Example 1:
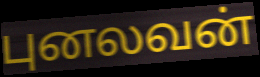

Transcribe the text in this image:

புனலவன்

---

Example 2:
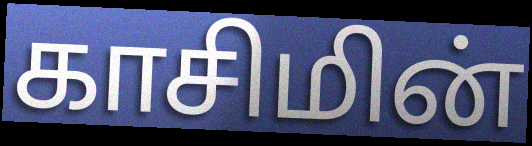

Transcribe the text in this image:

காசிமின்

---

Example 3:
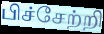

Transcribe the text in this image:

பிச்சேற்றி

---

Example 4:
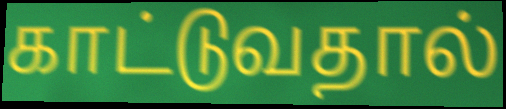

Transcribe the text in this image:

காட்டுவதால்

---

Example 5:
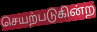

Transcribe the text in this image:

செயற்படுகின்ற